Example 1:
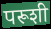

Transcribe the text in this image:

परूशी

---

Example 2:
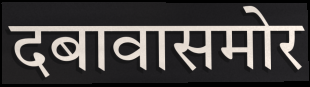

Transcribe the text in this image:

दबावासमोर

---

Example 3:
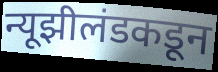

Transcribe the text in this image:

न्यूझीलंडकडून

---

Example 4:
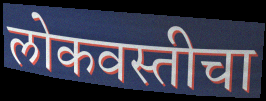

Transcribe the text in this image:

लोकवस्तीचा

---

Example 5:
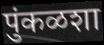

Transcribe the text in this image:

पुंकळशा